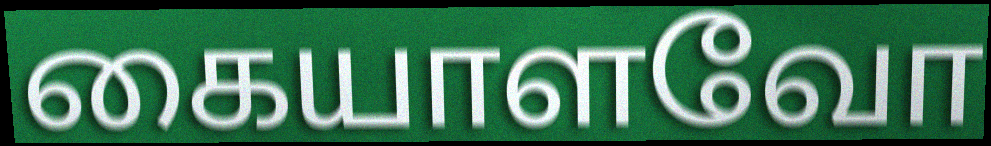
கையாளவோ